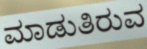
ಮಾಡುತಿರುವ